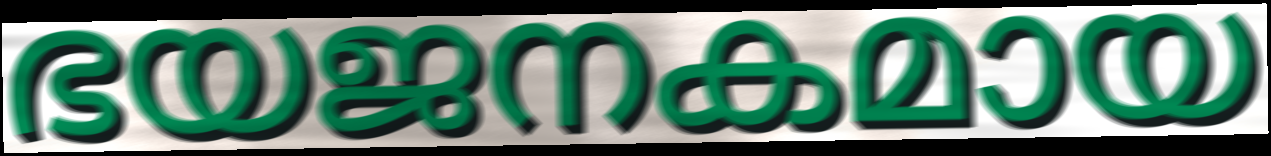
ഭയജനകമായ